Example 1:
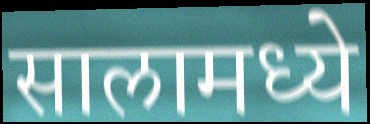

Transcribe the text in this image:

सालामध्ये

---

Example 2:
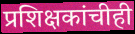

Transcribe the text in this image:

प्रशिक्षकांचीही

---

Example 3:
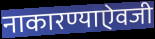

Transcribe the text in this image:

नाकारण्याऐवजी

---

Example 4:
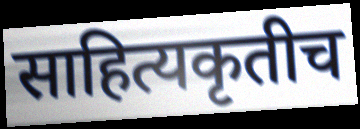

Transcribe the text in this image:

साहित्यकृतीच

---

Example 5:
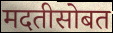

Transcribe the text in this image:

मदतीसोबत